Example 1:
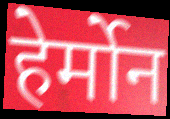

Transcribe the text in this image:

हेर्मोन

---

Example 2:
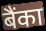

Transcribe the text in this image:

बैंका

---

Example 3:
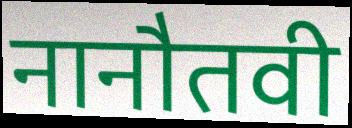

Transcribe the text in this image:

नानौतवी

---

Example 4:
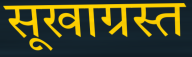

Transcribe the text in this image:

सूखाग्रस्त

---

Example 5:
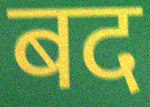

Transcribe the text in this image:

बद